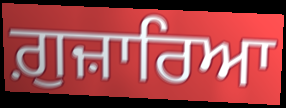
ਗ਼ੁਜ਼ਾਰਿਆ